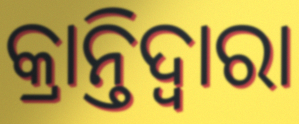
କ୍ରାନ୍ତିଦ୍ୱାରା